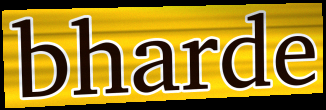
bharde